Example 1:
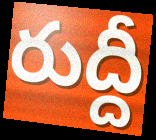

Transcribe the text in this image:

రుద్దీ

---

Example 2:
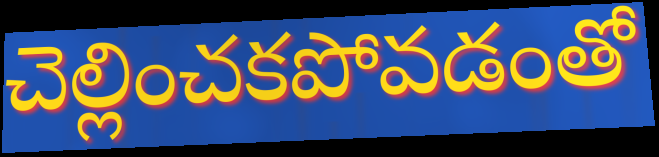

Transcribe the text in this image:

చెల్లించకపోవడంతో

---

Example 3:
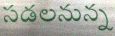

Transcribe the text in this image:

సడలనున్న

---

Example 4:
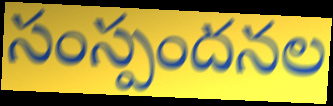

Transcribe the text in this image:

సంస్పందనల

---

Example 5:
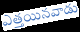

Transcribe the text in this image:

ఎత్తయినవాడు